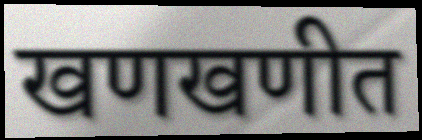
खणखणीत